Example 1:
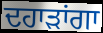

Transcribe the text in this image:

ਦਹਾੜਾਂਗਾ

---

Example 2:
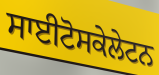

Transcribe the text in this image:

ਸਾਈਟੋਸਕੇਲੇਟਨ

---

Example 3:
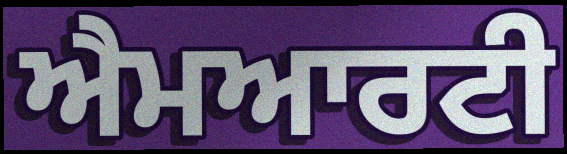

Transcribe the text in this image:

ਐਮਆਰਟੀ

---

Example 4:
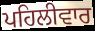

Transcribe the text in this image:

ਪਹਿਲੀਵਾਰ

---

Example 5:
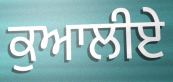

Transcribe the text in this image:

ਕੁਆਲੀਏ